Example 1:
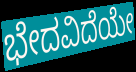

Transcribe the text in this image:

ಭೇದವಿದೆಯೇ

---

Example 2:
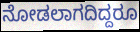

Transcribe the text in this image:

ನೋಡಲಾಗದಿದ್ದರೂ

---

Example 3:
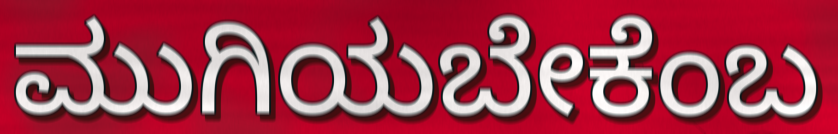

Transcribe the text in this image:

ಮುಗಿಯಬೇಕೆಂಬ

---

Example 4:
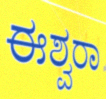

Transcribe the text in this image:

ಈಶ್ವರಾ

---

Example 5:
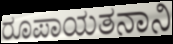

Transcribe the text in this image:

ರೂಪಾಯತನಾನಿ